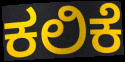
ಕಲಿಕೆ